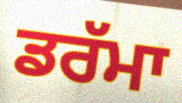
ਡਰੱਮਾ